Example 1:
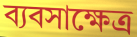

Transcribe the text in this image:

ব্যবসাক্ষেত্র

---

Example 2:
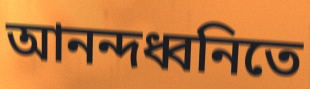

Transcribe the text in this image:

আনন্দধ্বনিতে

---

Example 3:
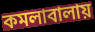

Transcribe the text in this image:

কমলাবালায়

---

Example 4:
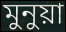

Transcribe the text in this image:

মুনুয়া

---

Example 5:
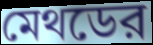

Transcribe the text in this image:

মেথডের